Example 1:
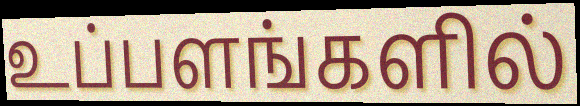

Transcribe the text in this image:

உப்பளங்களில்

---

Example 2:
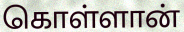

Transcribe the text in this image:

கொள்ளான்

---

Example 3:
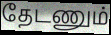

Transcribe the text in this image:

தேடணும்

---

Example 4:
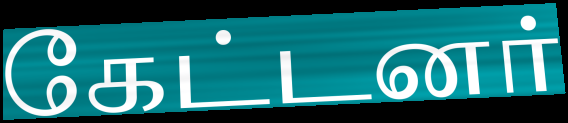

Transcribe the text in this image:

கேட்டனர்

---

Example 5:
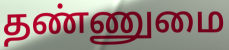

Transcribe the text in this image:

தண்ணுமை